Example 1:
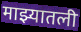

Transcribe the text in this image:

माझ्यातली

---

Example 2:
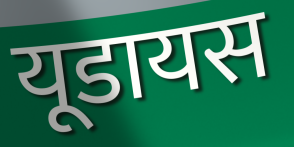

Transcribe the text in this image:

यूडायस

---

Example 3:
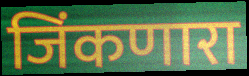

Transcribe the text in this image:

जिंकणारा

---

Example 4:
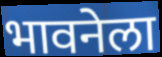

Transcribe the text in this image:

भावनेला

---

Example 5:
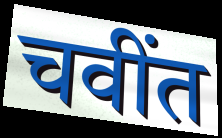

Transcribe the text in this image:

चवींत